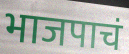
भाजपाचं